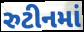
રુટીનમાં